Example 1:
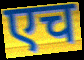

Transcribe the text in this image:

एच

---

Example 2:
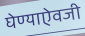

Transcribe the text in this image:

घेण्याऐवजी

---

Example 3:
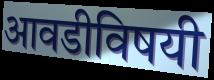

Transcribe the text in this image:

आवडीविषयी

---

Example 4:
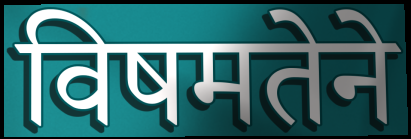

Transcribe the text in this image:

विषमतेने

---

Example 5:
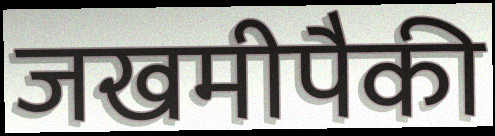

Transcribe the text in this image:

जखमीपैकी